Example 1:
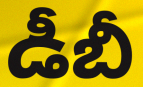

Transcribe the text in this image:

డీబీ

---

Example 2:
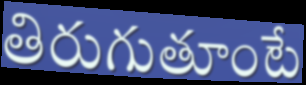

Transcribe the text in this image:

తిరుగుతూంటే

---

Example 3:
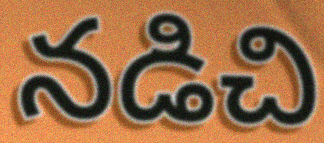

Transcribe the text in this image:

నడిచి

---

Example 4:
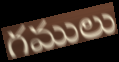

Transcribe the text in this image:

గములు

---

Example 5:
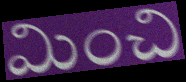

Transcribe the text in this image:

మించి